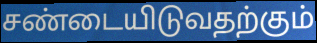
சண்டையிடுவதற்கும்